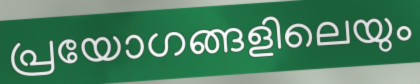
പ്രയോഗങ്ങളിലെയും